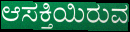
ಆಸಕ್ತಿಯಿರುವ